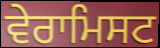
ਵੇਰਾਮਿਸਟ